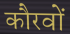
कौरवों